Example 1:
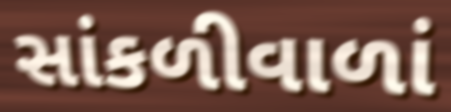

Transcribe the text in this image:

સાંકળીવાળાં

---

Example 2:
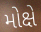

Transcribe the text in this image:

મોક્ષે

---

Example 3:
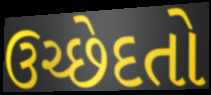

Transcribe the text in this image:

ઉચ્છેદતો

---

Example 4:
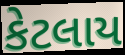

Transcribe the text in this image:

કેટલાય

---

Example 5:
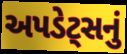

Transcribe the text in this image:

અપડેટ્સનું